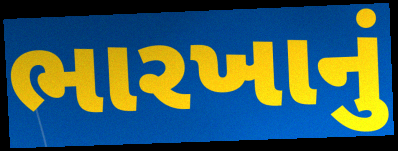
ભારખાનું